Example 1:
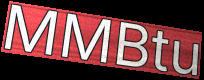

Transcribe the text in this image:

MMBtu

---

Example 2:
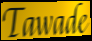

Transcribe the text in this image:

Tawade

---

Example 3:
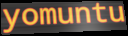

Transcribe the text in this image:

yomuntu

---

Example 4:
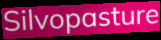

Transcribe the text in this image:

Silvopasture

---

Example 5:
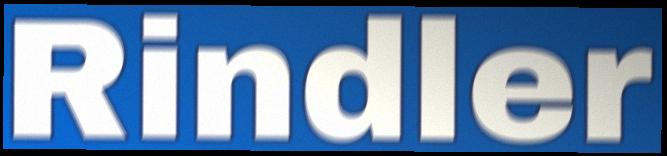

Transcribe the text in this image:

Rindler